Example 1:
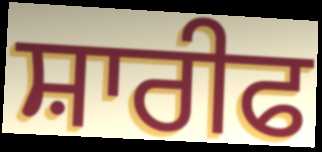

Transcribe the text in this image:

ਸ਼ਾਰੀਫ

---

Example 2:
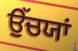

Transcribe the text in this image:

ਉੱਚਯਾਂ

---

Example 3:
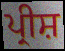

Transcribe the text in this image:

ਪ੍ਰੀਸ਼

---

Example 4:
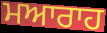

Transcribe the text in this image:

ਮਆਰਾਹ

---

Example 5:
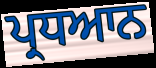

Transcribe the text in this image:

ਪ੍ਰਧਆਨ